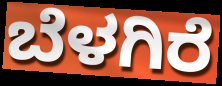
ಬೆಳಗಿರೆ